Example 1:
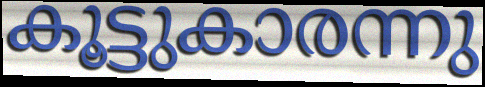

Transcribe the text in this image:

കൂട്ടുകാരന്നു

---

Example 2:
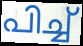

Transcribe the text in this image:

പിച്ച്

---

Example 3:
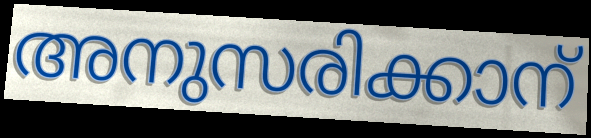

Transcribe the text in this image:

അനുസരിക്കാന്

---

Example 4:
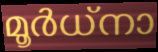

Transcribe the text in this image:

മൂർധ്നാ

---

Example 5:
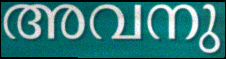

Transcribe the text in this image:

അവനു